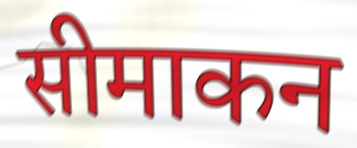
सीमाकन